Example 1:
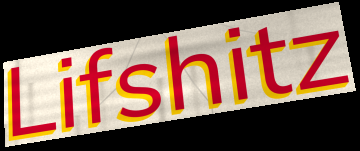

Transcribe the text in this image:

Lifshitz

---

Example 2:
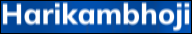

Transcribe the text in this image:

Harikambhoji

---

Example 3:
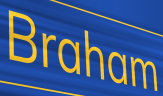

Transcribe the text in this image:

Braham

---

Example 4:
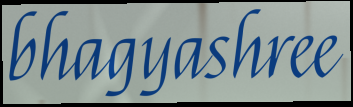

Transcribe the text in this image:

bhagyashree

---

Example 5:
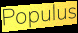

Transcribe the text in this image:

Populus